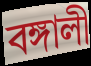
বঙ্গালী